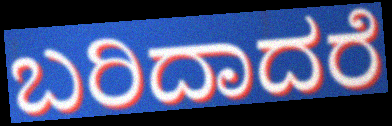
ಬರಿದಾದರೆ